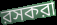
রসকরা